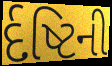
ર્દષ્ટિની